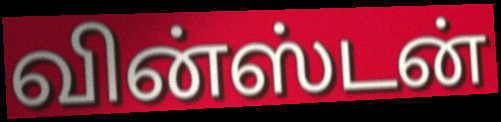
வின்ஸ்டன்